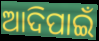
ଆଦିପାଇଁ